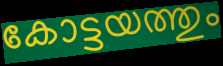
കോട്ടയത്തും